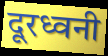
दूरध्वनी